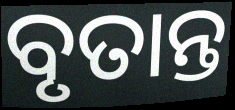
ବୃତାନ୍ତ